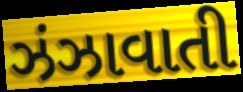
ઝંઝાવાતી